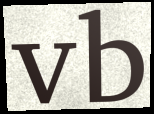
vb